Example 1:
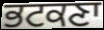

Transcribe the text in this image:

ਭਟਕਣਾ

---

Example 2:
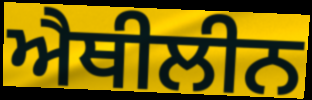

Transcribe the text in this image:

ਐਥੀਲੀਨ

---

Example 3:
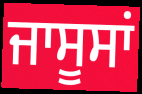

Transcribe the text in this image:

ਜਾਸੂਸਾਂ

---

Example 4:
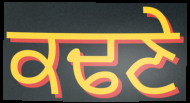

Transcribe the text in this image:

ਕਢਣੇ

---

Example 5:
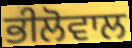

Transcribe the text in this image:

ਭੀਲੋਵਾਲ